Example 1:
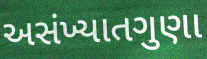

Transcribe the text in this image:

અસંખ્યાતગુણા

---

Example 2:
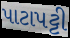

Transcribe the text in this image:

પાટાપટ્ટી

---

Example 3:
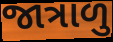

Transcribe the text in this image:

જાત્રાળુ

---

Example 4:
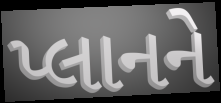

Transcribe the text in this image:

પ્લાનને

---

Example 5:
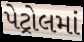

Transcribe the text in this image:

પેટ્રોલમાં